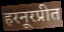
हरनूरप्रीत